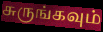
சுருங்கவும்